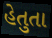
હેતુતા